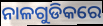
ନାଳଗୁଡିକରେ